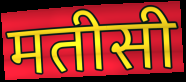
मतीसी